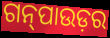
ଗନ୍‍ପାଉଡ଼ର